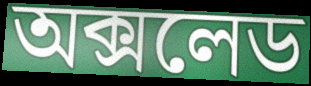
অক্সলেড